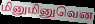
மினுமினுவென